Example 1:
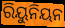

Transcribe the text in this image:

ରିୟୁନିୟନ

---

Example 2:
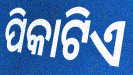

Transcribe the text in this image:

ପିକାଟିଏ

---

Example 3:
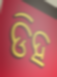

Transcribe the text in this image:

ଡିହ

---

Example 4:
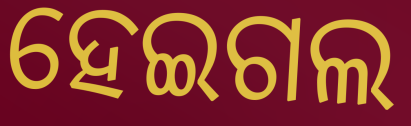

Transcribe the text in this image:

ହେଇଗଲ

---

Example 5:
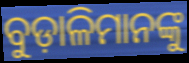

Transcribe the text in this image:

ବୁଡ଼ାଳିମାନଙ୍କୁ